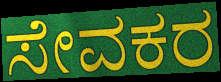
ಸೇವಕರ